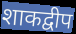
शाकद्वीप